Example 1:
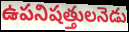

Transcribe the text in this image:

ఉపనిషత్తులనెడు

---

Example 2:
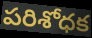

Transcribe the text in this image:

పరిశోధక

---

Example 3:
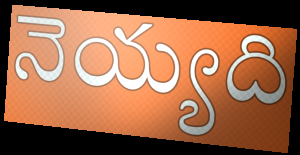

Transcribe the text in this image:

నెయ్యది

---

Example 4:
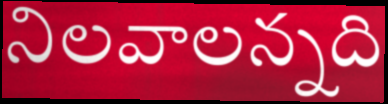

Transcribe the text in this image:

నిలవాలన్నది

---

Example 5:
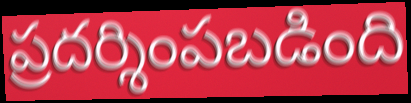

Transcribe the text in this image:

ప్రదర్శింపబడింది